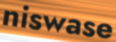
niswase